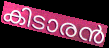
കിടാരൻ